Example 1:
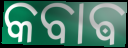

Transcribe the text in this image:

କବାଵ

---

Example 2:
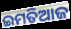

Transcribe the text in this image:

ଇମତିଆଜ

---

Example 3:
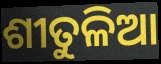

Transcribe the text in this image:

ଶୀତୁଳିଆ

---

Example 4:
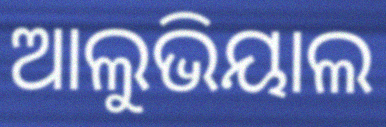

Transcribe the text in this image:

ଆଲୁଭିୟାଲ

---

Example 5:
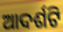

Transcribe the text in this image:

ଆଦର୍ଶଟି